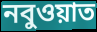
নবুওয়াত